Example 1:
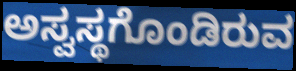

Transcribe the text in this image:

ಅಸ್ವಸ್ಥಗೊಂಡಿರುವ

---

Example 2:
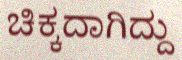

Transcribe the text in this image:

ಚಿಕ್ಕದಾಗಿದ್ದು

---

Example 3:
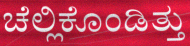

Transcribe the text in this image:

ಚೆಲ್ಲಿಕೊಂಡಿತ್ತು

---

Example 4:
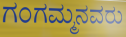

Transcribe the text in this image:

ಗಂಗಮ್ಮನವರು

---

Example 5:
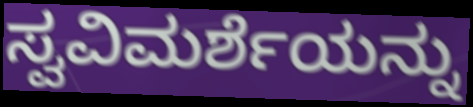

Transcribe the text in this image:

ಸ್ವವಿಮರ್ಶೆಯನ್ನು